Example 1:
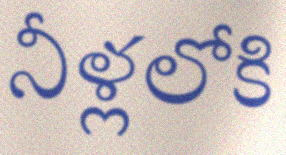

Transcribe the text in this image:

నీళ్లలోకి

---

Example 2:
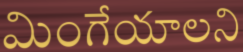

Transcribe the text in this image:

మింగేయాలని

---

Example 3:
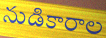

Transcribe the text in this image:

నుడికారాల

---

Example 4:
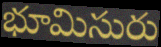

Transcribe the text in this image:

భూమిసురు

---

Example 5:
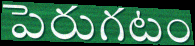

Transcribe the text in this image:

పెరుగటం